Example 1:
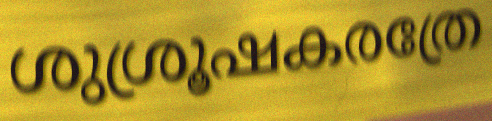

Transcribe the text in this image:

ശുശ്രൂഷകരത്രേ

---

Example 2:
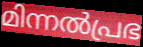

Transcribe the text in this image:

മിന്നൽപ്രഭ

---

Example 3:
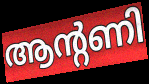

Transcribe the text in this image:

ആന്റണി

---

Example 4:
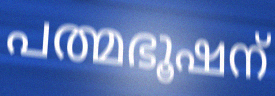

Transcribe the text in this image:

പത്മഭൂഷന്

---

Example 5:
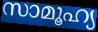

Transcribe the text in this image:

സാമൂഹ്യ